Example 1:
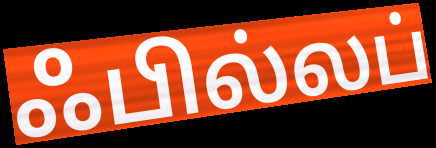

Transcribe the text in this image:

ஃபில்லப்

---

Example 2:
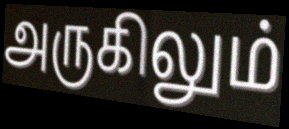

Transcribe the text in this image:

அருகிலும்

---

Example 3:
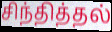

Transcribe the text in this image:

சிந்தித்தல்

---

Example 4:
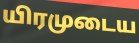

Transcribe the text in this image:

யிரமுடைய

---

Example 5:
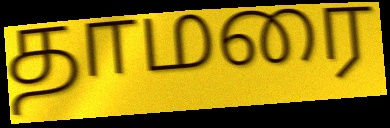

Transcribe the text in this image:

தாமரை